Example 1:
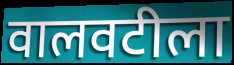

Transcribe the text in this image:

वालवटीला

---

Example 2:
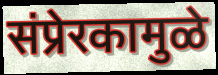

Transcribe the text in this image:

संप्रेरकामुळे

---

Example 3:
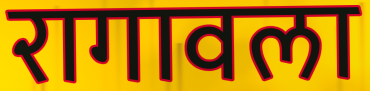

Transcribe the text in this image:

रागावला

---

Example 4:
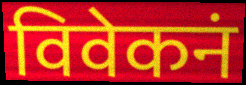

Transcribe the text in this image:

विवेकनं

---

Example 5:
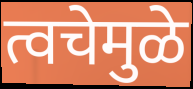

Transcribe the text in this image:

त्वचेमुळे